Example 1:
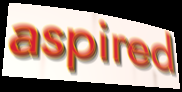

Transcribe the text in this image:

aspired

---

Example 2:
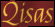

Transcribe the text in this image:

Qisas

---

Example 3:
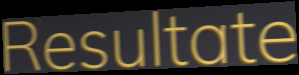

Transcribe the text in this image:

Resultate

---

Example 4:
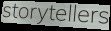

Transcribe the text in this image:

storytellers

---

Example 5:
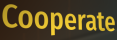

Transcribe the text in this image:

Cooperate